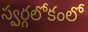
స్వర్గలోకంలో